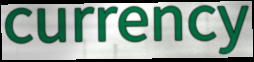
currency